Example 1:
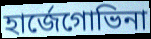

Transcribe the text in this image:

হার্জেগোভিনা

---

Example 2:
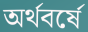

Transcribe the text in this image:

অর্থবর্ষে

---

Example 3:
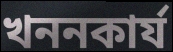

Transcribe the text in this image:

খননকার্য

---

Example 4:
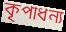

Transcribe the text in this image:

কৃপাধন্য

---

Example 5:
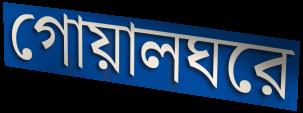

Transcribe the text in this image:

গোয়ালঘরে